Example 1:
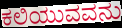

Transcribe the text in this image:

ಕಲಿಯುವವನು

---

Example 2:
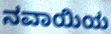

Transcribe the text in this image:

ನವಾಯಿಯ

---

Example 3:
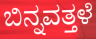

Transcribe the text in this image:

ಬಿನ್ನವತ್ತಳೆ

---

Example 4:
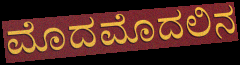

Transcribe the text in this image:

ಮೊದಮೊದಲಿನ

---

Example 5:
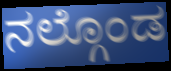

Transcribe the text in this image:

ನಲ್ಗೊಂಡ